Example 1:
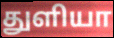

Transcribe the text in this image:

துளியா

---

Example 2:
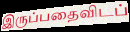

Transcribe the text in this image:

இருப்பதைவிடப்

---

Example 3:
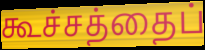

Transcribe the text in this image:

கூச்சத்தைப்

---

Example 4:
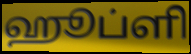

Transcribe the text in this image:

ஹூப்ளி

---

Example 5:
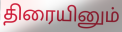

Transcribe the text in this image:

திரையினும்